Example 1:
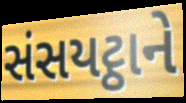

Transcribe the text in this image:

સંસયટ્ઠાને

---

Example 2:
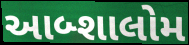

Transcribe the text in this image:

આબ્શાલોમ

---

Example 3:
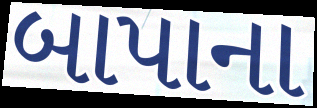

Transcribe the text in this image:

બાપાના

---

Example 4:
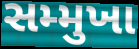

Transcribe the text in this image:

સમ્મુખા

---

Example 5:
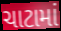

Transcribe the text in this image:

ચાટામાં